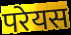
परेयस